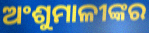
ଅଂଶୁମାଳୀଙ୍କର